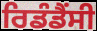
ਰਿਡੰਡੈਂਸੀ